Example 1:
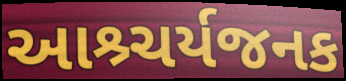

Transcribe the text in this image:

આશ્ર્ચર્યજનક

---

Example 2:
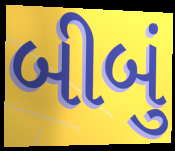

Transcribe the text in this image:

બીબું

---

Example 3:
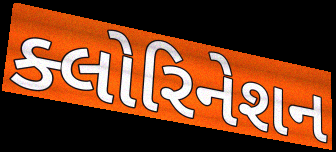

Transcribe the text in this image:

ક્લોરિનેશન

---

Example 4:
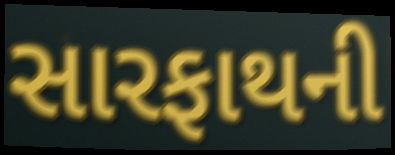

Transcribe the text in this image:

સારફાથની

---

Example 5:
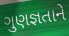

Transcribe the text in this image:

ગુણજ્ઞતાને